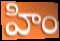
హిం